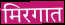
मिरगात